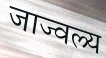
जाज्वल्य